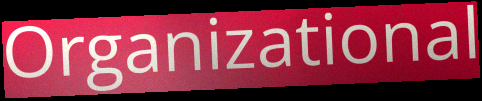
Organizational